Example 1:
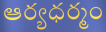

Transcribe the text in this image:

ఆర్యధర్మం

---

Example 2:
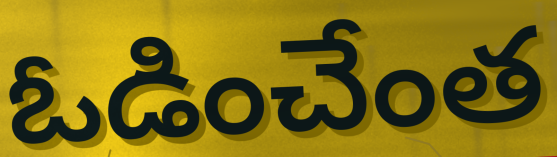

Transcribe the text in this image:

ఓడించేంత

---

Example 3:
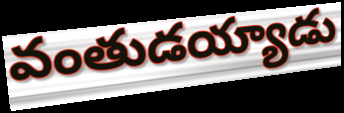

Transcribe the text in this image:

వంతుడయ్యాడు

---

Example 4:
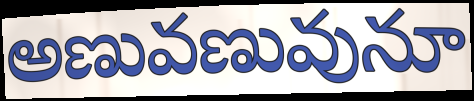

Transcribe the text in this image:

అణువణువునూ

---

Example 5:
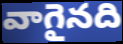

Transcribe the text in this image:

వాగైనది